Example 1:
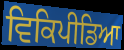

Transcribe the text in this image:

ਵਿਕਿਪੀਡਿਆ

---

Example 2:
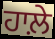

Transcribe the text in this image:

ਹਾਲ਼ੇ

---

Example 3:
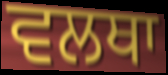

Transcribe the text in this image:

ਵਲਥਾ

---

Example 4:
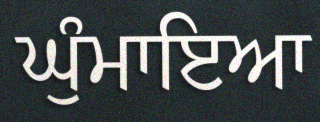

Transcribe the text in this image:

ਘੁੰਮਾਇਆ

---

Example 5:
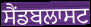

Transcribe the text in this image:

ਸੈਂਡਬਲਾਸਟ